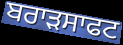
ਬਰਾੜਸਾਫਟ